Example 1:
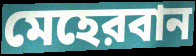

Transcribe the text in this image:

মেহেরবান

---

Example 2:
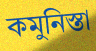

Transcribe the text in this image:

কমুনিস্তা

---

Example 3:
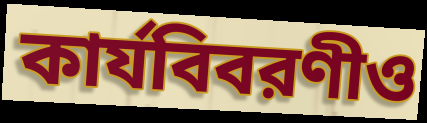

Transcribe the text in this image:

কার্যবিবরণীও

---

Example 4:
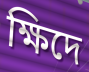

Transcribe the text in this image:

ক্ষিদে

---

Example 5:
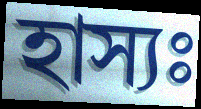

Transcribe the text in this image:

হাস্যঃ